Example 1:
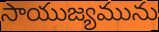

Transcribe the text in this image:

సాయుజ్యమును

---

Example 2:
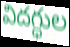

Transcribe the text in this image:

విదగ్ధుల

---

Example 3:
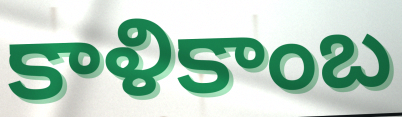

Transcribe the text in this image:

కాళికాంబ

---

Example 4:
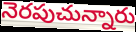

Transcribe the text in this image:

నెరపుచున్నారు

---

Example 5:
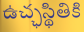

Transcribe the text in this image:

ఉచ్ఛస్థితికి